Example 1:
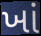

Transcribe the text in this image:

ખાં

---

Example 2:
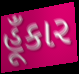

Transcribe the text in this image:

હૂઁકાર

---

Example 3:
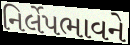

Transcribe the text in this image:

નિર્લેપભાવને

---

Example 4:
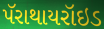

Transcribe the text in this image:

પૅરાથાયરૉઇડ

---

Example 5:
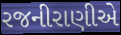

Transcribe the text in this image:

રજનીરાણીએ